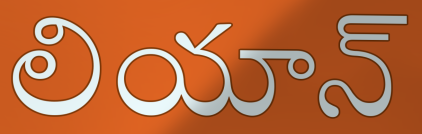
లియాన్